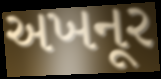
અખનૂર